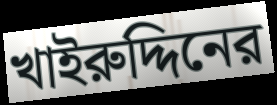
খাইরুদ্দিনের